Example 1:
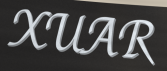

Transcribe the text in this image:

XUAR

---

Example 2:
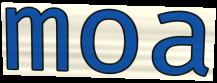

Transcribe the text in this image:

moa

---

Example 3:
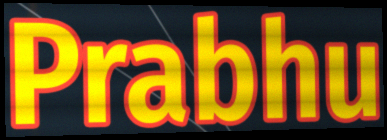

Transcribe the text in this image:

Prabhu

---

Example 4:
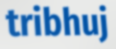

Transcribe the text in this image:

tribhuj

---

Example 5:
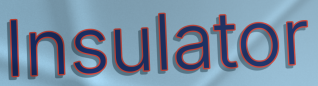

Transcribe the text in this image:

Insulator